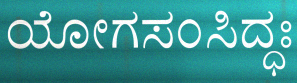
ಯೋಗಸಂಸಿದ್ಧಃ